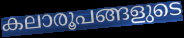
കലാരൂപങ്ങളുടെ